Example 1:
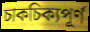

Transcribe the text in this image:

চাকচিক্যপূর্ণ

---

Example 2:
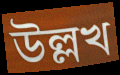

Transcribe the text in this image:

উল্লখ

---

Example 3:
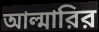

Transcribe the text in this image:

আল্মারির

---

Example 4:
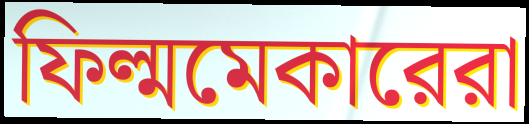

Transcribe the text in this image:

ফিল্মমেকারেরা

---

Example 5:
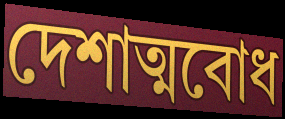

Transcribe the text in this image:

দেশাত্মবোধ